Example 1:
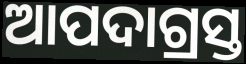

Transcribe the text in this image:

ଆପଦାଗ୍ରସ୍ତ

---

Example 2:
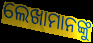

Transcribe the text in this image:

ଲେଖାମାନଙ୍କୁ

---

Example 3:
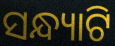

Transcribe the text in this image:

ସନ୍ଧ୍ୟାଟି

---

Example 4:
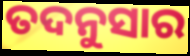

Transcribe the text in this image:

ତଦନୁସାର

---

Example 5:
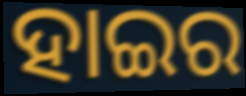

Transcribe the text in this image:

ହାଇର